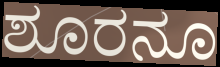
ಶೂರನೂ